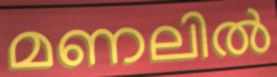
മണലിൽ